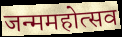
जन्ममहोत्सव